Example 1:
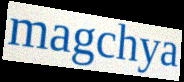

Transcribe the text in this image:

magchya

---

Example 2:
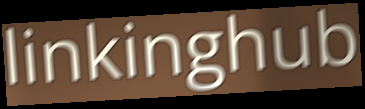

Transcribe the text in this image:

linkinghub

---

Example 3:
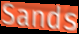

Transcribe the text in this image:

Sands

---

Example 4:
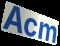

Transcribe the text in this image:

Acm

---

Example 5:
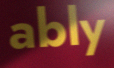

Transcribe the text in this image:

ably